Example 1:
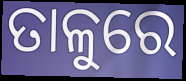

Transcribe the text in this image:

ତାଳୁରେ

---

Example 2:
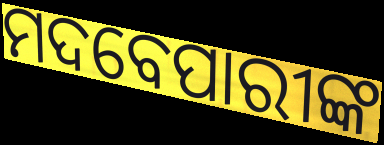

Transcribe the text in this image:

ମଦବେପାରୀଙ୍କ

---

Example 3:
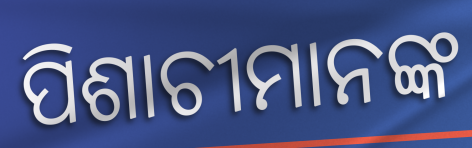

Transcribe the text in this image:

ପିଶାଚୀମାନଙ୍କ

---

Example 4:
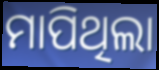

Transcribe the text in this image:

ମାପିଥିଲା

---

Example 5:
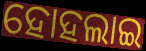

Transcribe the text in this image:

ହୋହଲାଇ